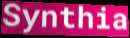
Synthia